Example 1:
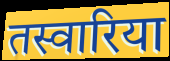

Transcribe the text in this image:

तस्वारिया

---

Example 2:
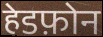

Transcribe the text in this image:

हेडफ़ोन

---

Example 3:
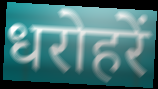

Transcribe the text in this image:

धरोहरें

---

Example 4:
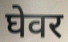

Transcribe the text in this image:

घेवर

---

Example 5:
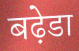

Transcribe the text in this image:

बढ़ेडा